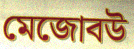
মেজোবউ